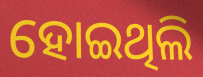
ହୋଇଥିଲି